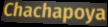
Chachapoya